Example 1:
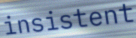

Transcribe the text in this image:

insistent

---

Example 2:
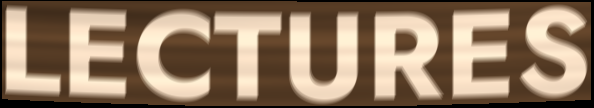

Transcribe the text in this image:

LECTURES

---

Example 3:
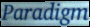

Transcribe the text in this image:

Paradigm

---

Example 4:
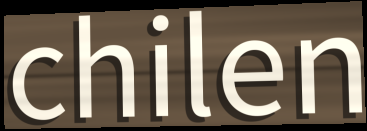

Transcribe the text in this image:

chilen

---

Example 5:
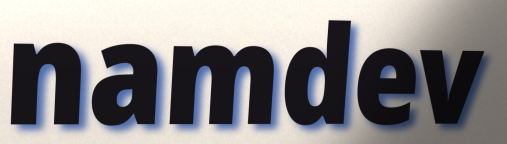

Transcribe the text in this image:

namdev